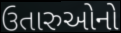
ઉતારુઓનો